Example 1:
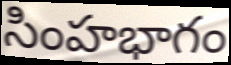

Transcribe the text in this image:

సింహభాగం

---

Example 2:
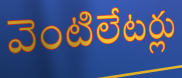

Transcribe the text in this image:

వెంటిలేటర్లు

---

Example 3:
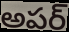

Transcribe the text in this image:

అపర్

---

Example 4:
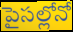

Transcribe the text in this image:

పైసల్లోనో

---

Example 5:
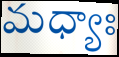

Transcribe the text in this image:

మధ్యాః